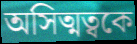
অসিত্মত্বকে